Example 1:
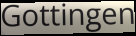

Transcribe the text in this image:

Gottingen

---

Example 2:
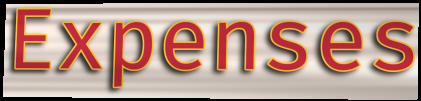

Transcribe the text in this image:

Expenses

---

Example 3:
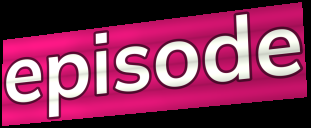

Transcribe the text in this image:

episode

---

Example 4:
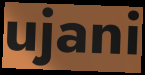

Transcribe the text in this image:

ujani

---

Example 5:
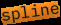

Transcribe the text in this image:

spline